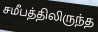
சமீபத்திலிருந்த